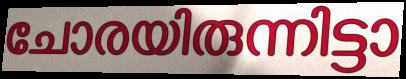
ചോരയിരുന്നിട്ടാ